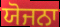
ਯੋਜਨਾ